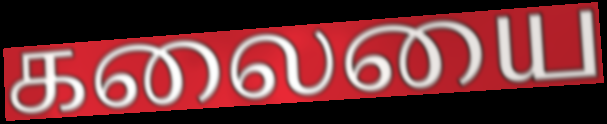
கலையை